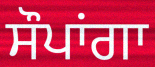
ਸੌਪਾਂਗਾ